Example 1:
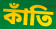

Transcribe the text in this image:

কাঁতি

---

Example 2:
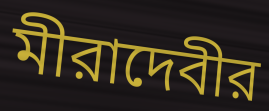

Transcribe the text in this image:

মীরাদেবীর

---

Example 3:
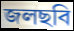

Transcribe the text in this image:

জলছবি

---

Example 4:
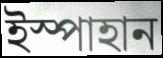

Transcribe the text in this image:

ইস্পাহান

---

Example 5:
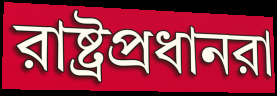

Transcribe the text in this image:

রাষ্ট্রপ্রধানরা